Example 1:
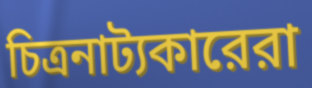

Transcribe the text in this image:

চিত্রনাট্যকারেরা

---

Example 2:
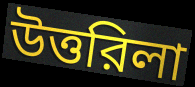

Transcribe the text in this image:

উত্তরিলা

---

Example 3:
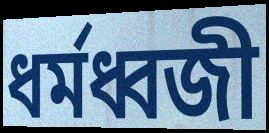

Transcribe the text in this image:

ধর্মধ্বজী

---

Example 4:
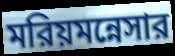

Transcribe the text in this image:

মরিয়মন্নেসার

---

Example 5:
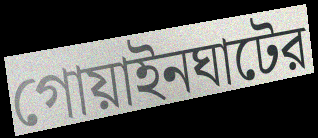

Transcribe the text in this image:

গোয়াইনঘাটের